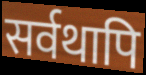
सर्वथापि